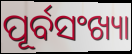
ପୂର୍ବସଂଖ୍ୟା